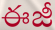
ఈజీ